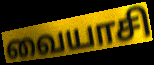
வையாசி